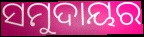
ସମୁଦାୟର